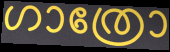
ഗാത്രോ